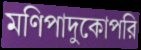
মণিপাদুকোপরি